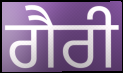
ਗੈਰੀ